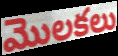
మొలకలు